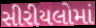
સીરીયલોમાં